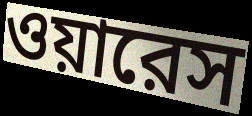
ওয়ারেস